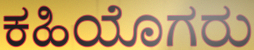
ಕಹಿಯೊಗರು